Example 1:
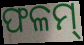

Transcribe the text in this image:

ଫଳମ୍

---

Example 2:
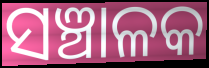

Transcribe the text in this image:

ସଞ୍ଚାଳକ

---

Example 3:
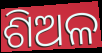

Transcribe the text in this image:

ଶିଅଳ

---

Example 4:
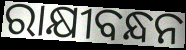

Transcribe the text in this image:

ରାକ୍ଷୀବନ୍ଧନ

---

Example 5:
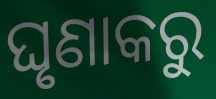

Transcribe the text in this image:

ଘୃଣାକରୁ